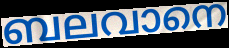
ബലവാനെ